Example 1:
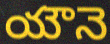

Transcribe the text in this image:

యౌనె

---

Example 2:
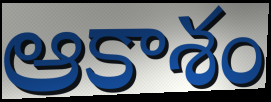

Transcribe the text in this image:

ఆకాశం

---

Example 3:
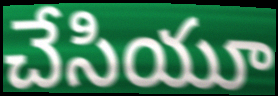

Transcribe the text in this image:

చేసియూ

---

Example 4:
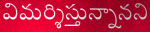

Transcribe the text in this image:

విమర్శిస్తున్నానని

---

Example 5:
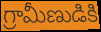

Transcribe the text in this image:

గ్రామీణుడికి